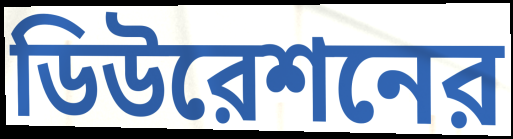
ডিউরেশনের